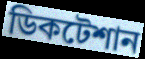
ডিকটেশান